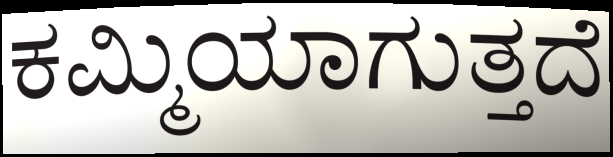
ಕಮ್ಮಿಯಾಗುತ್ತದೆ